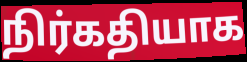
நிர்கதியாக